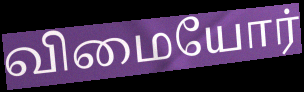
விமையோர்